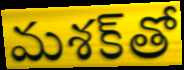
మశక్‌తో